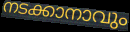
നടക്കാനാവും